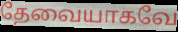
தேவையாகவே